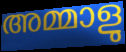
അമ്മാളു